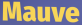
Mauve